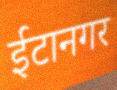
ईटानगर